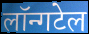
लॉन्गटेल